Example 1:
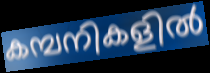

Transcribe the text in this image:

കമ്പനികളിൽ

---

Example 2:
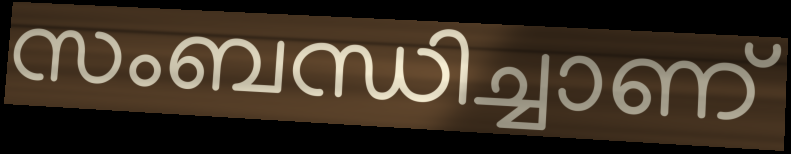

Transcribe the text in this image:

സംബന്ധിച്ചാണ്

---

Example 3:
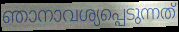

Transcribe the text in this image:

ഞാനാവശ്യപ്പെടുന്നത്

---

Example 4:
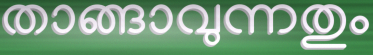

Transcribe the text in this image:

താങ്ങാവുന്നതും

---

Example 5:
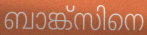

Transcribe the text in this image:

ബാങ്ക്സിനെ